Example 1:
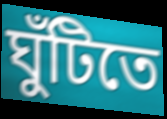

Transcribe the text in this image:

ঘুঁটিতে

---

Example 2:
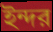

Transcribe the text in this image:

ইন্দর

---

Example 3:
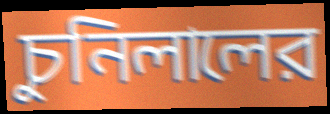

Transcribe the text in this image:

চুনিলালের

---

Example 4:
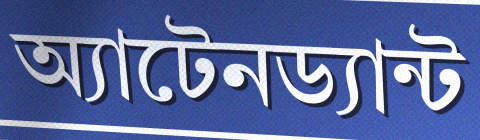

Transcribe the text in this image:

অ্যাটেনড্যান্ট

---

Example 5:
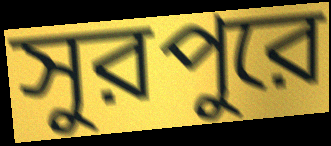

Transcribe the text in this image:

সুরপুরে